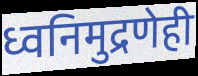
ध्वनिमुद्रणेही